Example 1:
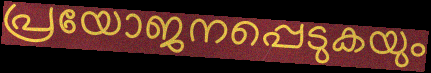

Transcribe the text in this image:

പ്രയോജനപ്പെടുകയും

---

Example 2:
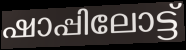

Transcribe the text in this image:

ഷാപ്പിലോട്ട്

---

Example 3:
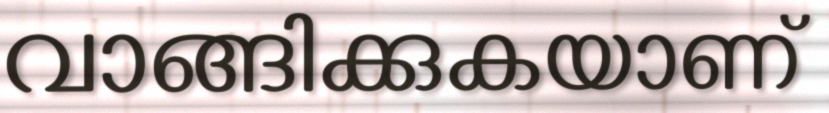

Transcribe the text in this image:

വാങ്ങിക്കുകയാണ്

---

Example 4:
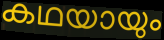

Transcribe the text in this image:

കഥയായും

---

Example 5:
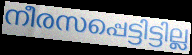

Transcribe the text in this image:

നീരസപ്പെട്ടിട്ടില്ല